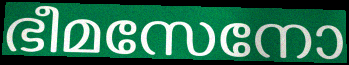
ഭീമസേനോ